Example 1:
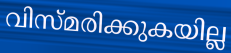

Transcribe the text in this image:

വിസ്മരിക്കുകയില്ല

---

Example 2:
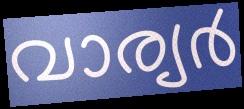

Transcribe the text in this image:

വാര്യർ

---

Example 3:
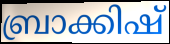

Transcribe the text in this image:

ബ്രാക്കിഷ്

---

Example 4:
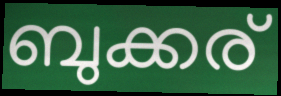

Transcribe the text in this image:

ബുക്കര്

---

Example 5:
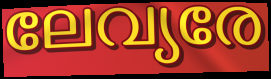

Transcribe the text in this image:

ലേവ്യരേ